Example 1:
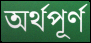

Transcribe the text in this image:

অর্থপূর্ণ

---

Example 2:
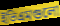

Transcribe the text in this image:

ইভিএমগুলো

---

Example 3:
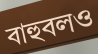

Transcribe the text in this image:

বাহুবলও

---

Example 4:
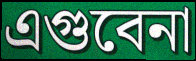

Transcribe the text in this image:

এগুবেনা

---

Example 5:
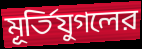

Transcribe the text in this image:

মূর্তিযুগলের